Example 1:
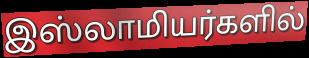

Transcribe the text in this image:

இஸ்லாமியர்களில்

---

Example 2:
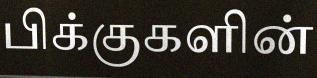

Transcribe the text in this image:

பிக்குகளின்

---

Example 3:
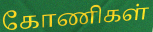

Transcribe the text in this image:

கோணிகள்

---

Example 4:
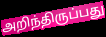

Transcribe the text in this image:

அறிந்திருப்பது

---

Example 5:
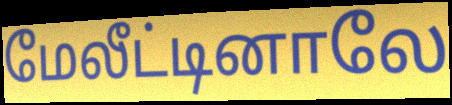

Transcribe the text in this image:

மேலீட்டினாலே